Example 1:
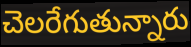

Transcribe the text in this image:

చెలరేగుతున్నారు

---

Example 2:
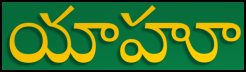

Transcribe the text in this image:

యాహూ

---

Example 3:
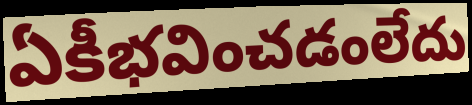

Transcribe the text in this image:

ఏకీభవించడంలేదు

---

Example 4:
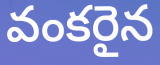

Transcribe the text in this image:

వంకరైన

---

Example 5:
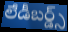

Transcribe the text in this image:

లేడీబర్డ్స్